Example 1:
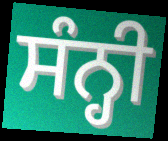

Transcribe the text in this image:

ਸੰਨ੍ਹ੍ਹੀ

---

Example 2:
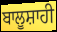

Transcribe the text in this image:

ਬਾਲੂਸ਼ਾਹੀ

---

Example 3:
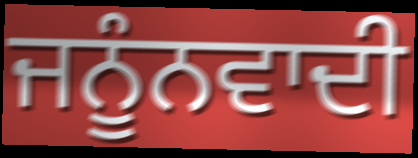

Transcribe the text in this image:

ਜਨੂੰਨਵਾਦੀ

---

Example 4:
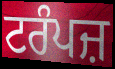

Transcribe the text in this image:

ਟਰੰਪਜ਼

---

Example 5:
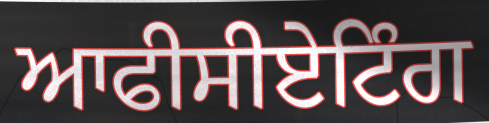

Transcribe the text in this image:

ਆਫੀਸੀਏਟਿੰਗ